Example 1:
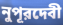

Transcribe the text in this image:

নুপূরদেবী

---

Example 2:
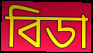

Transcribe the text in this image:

বিডা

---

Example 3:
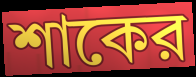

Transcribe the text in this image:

শাকের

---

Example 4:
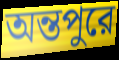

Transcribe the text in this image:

অন্তপুরে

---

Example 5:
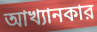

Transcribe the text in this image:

আখ্যানকার